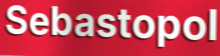
Sebastopol